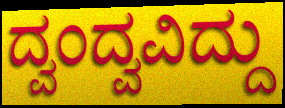
ದ್ವಂದ್ವವಿದ್ದು